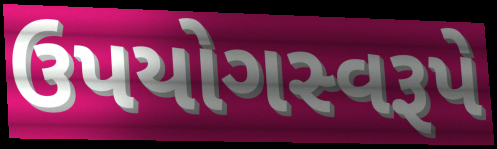
ઉપયોગસ્વરૂપે